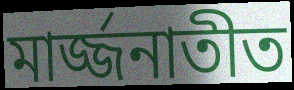
মার্জ্জনাতীত